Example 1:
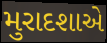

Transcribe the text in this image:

મુરાદશાએ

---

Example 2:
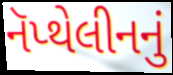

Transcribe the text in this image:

નૅપ્થેલીનનું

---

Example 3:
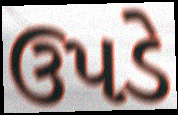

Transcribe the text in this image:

ઉપડે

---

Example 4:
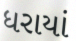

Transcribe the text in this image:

ધરાયાં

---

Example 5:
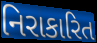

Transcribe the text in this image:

નિરાકારિત